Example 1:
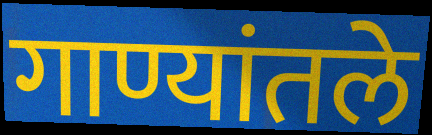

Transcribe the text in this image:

गाण्यांतले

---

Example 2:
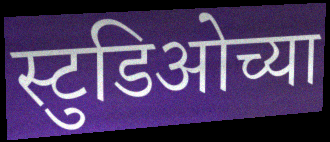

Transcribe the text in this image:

स्टुडिओच्या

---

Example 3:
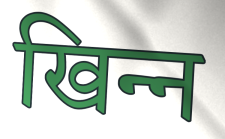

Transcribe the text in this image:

खिन्‍न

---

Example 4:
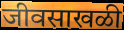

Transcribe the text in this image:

जीवसाखळी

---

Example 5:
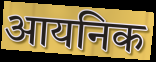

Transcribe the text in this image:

आयनिक